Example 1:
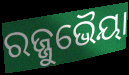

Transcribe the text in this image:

ରଜ୍ଜୁଭୈୟା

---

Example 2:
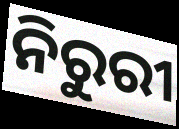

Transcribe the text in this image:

ନିରୁରୀ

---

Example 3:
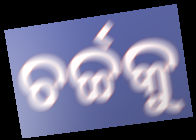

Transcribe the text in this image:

ଚର୍ଚ୍ଚକୁ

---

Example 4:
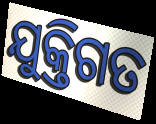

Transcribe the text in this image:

ଯୁକ୍ତିଗତ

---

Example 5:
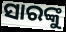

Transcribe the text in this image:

ସାରଙ୍କୁ